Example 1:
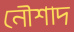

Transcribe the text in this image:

নৌশাদ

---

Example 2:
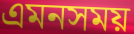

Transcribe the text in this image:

এমনসময়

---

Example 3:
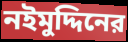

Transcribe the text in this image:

নইমুদ্দিনের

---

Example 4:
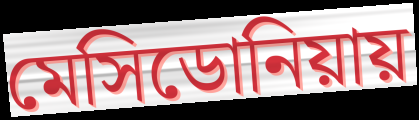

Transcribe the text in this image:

মেসিডোনিয়ায়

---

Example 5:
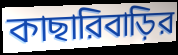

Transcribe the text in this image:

কাছারিবাড়ির